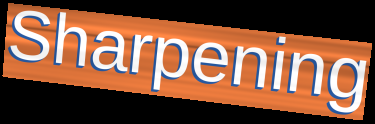
Sharpening